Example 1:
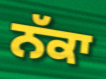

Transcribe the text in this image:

ਨੱਕਾ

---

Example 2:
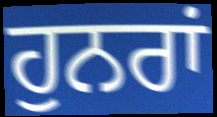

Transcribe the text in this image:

ਹੁਨਰਾਂ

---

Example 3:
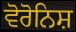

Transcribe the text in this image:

ਵੋਰੋਨਿਸ਼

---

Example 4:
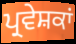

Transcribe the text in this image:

ਪ੍ਰਵੇਸ਼ਕਾਂ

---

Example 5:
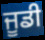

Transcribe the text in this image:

ਜੂਡੀ